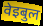
वेइबुल